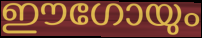
ഈഗോയും